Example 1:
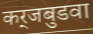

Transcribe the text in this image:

कर्जबुडवा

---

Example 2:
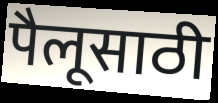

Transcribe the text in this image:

पैलूसाठी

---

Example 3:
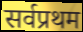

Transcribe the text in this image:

सर्वप्रथम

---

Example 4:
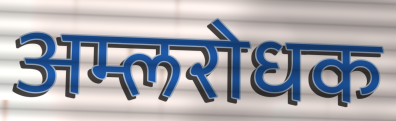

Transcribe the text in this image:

अम्लरोधक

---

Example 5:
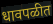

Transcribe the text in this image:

धावपळीत